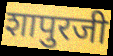
शापुरजी